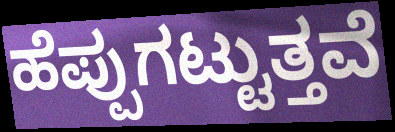
ಹೆಪ್ಪುಗಟ್ಟುತ್ತವೆ